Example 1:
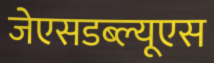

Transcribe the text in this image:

जेएसडब्ल्यूएस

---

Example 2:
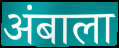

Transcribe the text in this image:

अंबाला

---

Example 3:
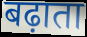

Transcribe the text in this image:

बढ़ाता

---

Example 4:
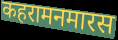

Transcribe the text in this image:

कहरामनमारस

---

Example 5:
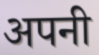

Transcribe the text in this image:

अपनी